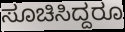
ಸೂಚಿಸಿದ್ದರೂ